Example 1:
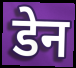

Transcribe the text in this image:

डेन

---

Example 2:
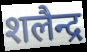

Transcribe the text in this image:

शलैन्द्र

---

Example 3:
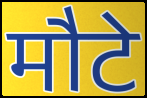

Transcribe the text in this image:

मौटे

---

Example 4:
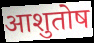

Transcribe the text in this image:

आशुतोष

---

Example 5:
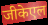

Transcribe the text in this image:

जीकेएल